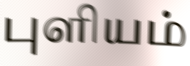
புளியம்